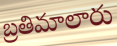
బ్రతిమాలారు